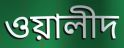
ওয়ালীদ